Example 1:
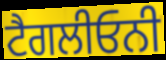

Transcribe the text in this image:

ਟੈਗਲੀਓਨੀ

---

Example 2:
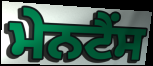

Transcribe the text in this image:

ਮੇਨਟੈਂਸ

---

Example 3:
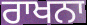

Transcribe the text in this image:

ਰਾਖਨਾ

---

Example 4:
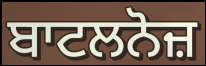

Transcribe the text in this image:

ਬਾਟਲਨੋਜ਼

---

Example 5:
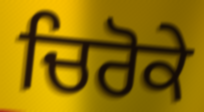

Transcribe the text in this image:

ਚਿਰੋਕੇ